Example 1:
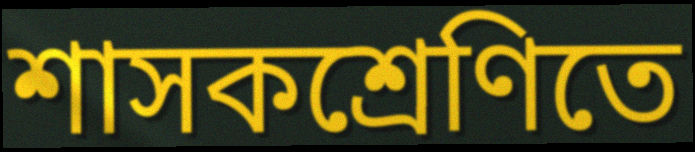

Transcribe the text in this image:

শাসকশ্রেণিতে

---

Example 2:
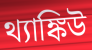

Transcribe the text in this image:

থ্যাঙ্কিউ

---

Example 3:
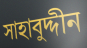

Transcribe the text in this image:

সাহাবুদ্দীন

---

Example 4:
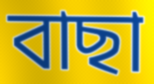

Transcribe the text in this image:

বাছা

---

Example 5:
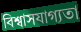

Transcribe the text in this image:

বিশ্বাসযাগ্যতা